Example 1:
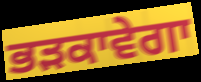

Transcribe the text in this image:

ਭੜਕਾਵੇਗਾ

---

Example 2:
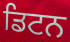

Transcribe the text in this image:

ਡਿਟਨ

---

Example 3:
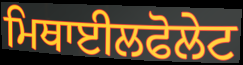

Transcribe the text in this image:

ਮਿਥਾਈਲਫੋਲੇਟ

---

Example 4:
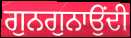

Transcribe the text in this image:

ਗੁਨਗੁਨਾਉਂਦੀ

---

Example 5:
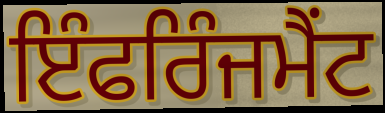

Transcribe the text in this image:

ਇੰਫਰਿੰਜਮੈਂਟ